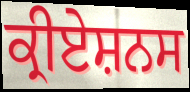
ਕ੍ਰੀਏਸ਼ਨਸ